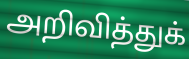
அறிவித்துக்